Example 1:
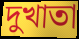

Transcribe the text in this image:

দুখাতা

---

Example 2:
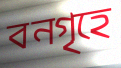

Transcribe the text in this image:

বনগৃহে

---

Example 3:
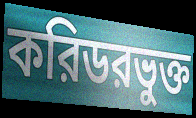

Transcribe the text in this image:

করিডরভুক্ত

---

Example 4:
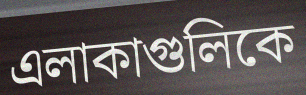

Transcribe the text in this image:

এলাকাগুলিকে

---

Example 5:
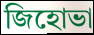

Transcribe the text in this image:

জিহোভা